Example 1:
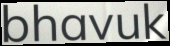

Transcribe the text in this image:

bhavuk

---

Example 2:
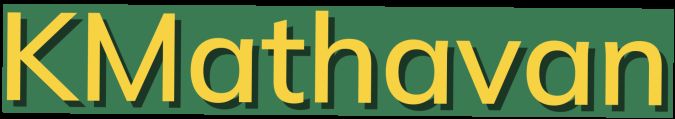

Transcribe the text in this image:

KMathavan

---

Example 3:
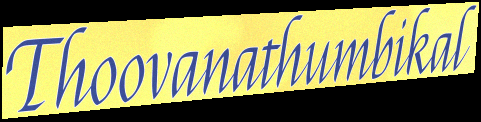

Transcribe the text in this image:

Thoovanathumbikal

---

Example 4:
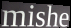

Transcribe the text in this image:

mishe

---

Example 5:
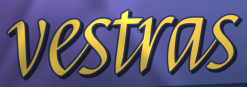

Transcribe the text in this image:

vestras